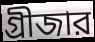
গ্রীজার